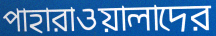
পাহারাওয়ালাদের